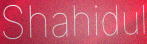
Shahidul